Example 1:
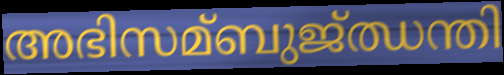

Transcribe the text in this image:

അഭിസമ്ബുജ്ഝന്തി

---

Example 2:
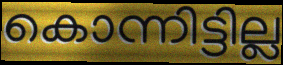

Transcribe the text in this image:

കൊന്നിട്ടില്ല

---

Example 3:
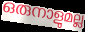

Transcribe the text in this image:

ഒരുനാളുമല്ല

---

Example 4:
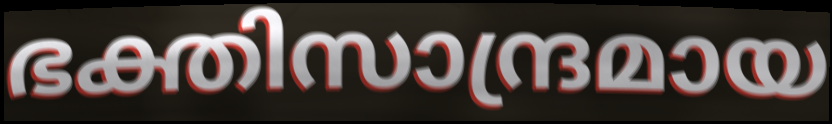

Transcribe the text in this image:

ഭക്തിസാന്ദ്രമായ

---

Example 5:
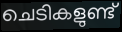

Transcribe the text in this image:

ചെടികളുണ്ട്